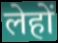
लेहों